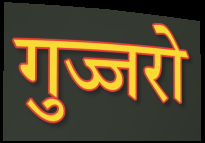
गुज्जरो